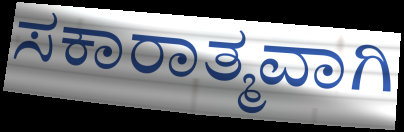
ಸಕಾರಾತ್ಮವಾಗಿ